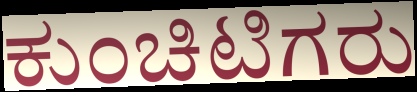
ಕುಂಚಿಟಿಗರು